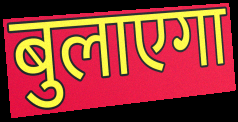
बुलाएगा